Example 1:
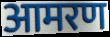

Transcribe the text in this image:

आमरण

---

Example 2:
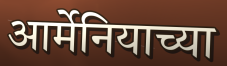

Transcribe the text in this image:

आर्मेनियाच्या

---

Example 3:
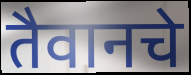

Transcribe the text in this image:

तैवानचे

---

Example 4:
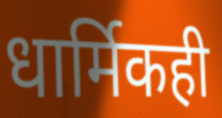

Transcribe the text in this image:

धार्मिकही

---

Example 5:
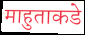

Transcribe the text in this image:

माहुताकडे